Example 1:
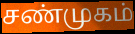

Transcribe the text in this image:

சண்முகம்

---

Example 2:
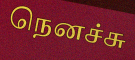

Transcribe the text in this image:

நெனச்சு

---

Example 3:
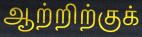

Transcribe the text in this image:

ஆற்றிற்குக்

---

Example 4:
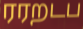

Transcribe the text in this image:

ரரறடப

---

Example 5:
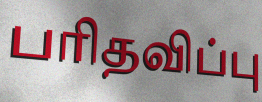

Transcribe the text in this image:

பரிதவிப்பு